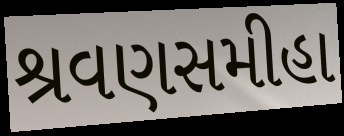
શ્રવણસમીહા